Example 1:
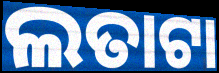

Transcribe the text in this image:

ଲତାଟା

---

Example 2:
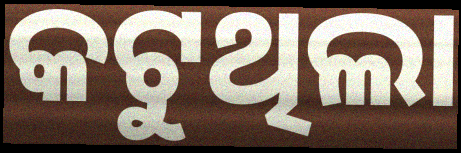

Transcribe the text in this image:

କଟୁଥିଲା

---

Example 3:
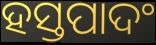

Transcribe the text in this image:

ହସ୍ତପାଦଂ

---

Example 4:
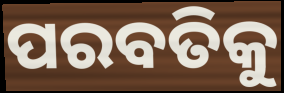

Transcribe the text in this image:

ପରବତିକୁ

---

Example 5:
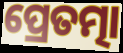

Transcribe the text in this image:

ପ୍ରେତତ୍ମା